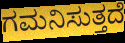
ಗಮನಿಸುತ್ತದೆ